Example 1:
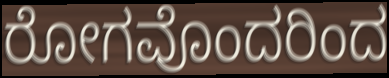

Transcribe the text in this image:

ರೋಗವೊಂದರಿಂದ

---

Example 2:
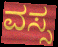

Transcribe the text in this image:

ವಸ್ಸ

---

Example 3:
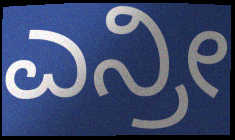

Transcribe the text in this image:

ಎನ್ರೀ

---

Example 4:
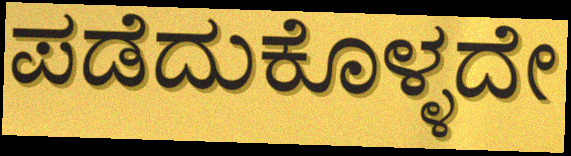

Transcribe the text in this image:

ಪಡೆದುಕೊಳ್ಳದೇ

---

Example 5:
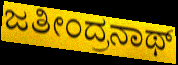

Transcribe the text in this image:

ಜತೀಂದ್ರನಾಥ್